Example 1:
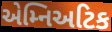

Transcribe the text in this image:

એમ્નિઅટિક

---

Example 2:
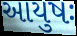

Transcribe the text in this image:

આયુષઃ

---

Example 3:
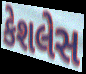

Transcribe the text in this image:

કેશલેસ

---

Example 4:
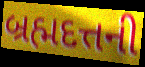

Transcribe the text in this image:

બ્રહ્મદત્તની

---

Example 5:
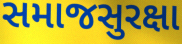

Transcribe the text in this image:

સમાજસુરક્ષા